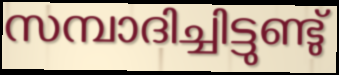
സമ്പാദിച്ചിട്ടുണ്ടു്